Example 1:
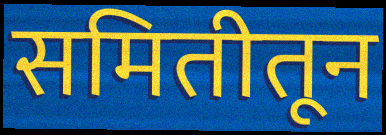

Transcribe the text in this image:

समितीतून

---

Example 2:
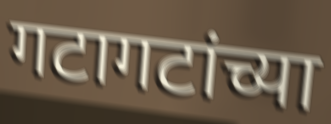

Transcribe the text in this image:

गटागटांच्या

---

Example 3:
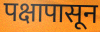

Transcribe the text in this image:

पक्षापासून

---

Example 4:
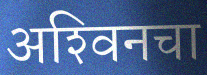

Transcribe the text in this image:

अश्विनचा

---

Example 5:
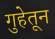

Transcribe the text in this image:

गुहेतून